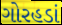
ગોરહડાં